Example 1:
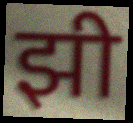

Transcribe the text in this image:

झी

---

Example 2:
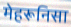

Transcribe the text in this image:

मेहरूनिसा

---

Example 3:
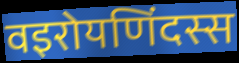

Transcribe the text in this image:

वइरोयणिंदस्स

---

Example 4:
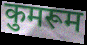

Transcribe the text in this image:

कुमरूम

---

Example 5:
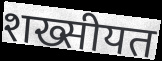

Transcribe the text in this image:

शख्सीयत